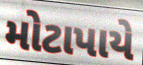
મોટાપાયે